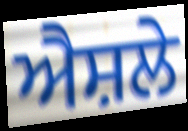
ਐਸ਼ਲੇ